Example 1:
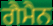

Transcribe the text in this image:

ਗੈਮੈਨ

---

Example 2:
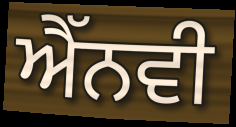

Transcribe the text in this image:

ਐੱਨਵੀ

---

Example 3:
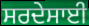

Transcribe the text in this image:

ਸਰਦੇਸਾਈ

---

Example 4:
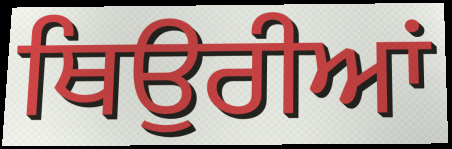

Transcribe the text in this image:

ਥਿਉਰੀਆਂ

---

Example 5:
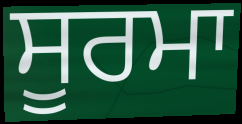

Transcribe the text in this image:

ਸੂਰਮਾ